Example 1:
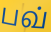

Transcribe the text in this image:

பவ்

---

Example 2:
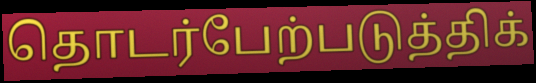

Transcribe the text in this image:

தொடர்பேற்படுத்திக்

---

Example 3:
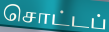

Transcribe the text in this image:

சொட்டப்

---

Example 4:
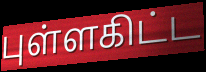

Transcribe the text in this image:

புள்ளகிட்ட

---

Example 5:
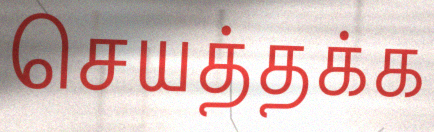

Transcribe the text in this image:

செயத்தக்க